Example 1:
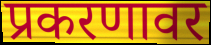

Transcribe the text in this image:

प्रकरणावर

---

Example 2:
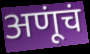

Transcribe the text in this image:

अणूंचं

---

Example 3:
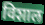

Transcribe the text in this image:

विशाल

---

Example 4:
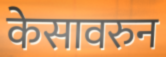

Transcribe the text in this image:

केसावरुन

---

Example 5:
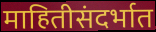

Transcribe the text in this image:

माहितीसंदर्भात